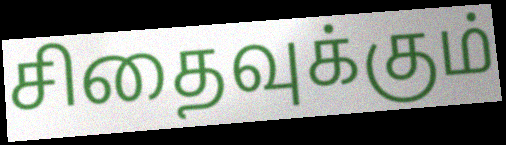
சிதைவுக்கும்